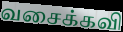
வசைக்கவி